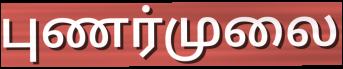
புணர்முலை